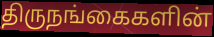
திருநங்கைகளின்